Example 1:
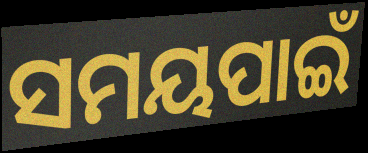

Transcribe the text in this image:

ସମୟପାଇଁ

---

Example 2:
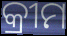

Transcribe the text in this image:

କ୍ରୀମ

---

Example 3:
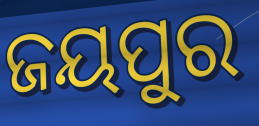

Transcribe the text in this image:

ଜୟପୁର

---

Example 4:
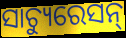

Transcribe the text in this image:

ସାଚ୍ୟୁରେସନ୍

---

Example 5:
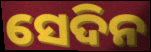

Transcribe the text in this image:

ସେଦିନ